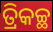
ତ୍ରିକଚ୍ଛ